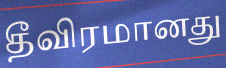
தீவிரமானது